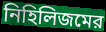
নিহিলিজমের